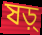
ষড়্